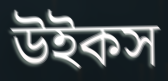
উইকস